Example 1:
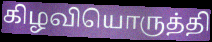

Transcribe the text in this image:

கிழவியொருத்தி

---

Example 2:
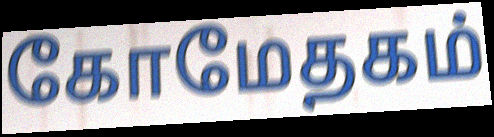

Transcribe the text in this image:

கோமேதகம்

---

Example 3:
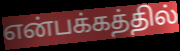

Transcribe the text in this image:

என்பக்கத்தில்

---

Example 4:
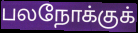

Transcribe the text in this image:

பலநோக்குக்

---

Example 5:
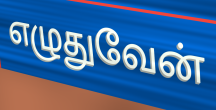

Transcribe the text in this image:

எழுதுவேன்